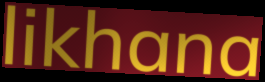
likhana